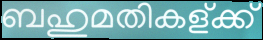
ബഹുമതികള്ക്ക്